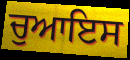
ਚੁਆਇਸ